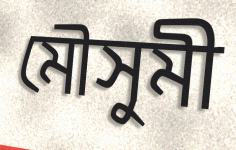
মৌসুমী